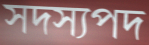
সদস্যপদ